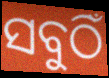
ସବୁଠିଁ